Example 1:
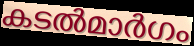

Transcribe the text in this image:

കടൽമാർഗം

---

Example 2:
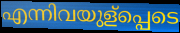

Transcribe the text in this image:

എന്നിവയുള്പ്പെടെ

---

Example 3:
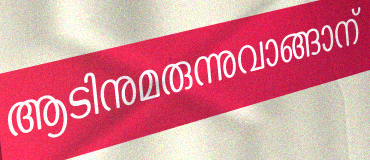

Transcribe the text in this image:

ആടിനുമരുന്നുവാങ്ങാന്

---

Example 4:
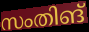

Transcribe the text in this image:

സംതിങ്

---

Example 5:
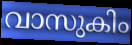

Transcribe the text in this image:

വാസുകിം